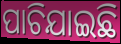
ପାଚିଯାଇଛି